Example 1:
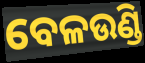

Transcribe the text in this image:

ବେଳଉଣ୍ଡି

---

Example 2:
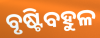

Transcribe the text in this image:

ବୃଷ୍ଟିବହୁଳ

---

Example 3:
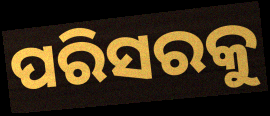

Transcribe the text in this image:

ପରିସରକୁ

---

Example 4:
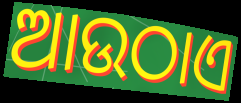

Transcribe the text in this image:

ଆଉଠାଏ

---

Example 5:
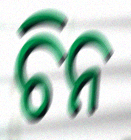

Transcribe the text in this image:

ଚିନ